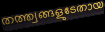
തത്ത്വങ്ങളുടേതായ